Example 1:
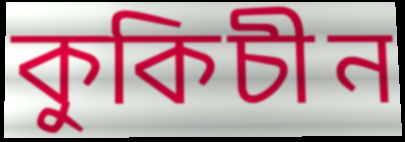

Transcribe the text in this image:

কুকিচীন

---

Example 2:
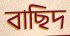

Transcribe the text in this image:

বাছিদ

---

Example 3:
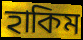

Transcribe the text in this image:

হাকিম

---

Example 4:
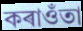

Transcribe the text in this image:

কৰাওঁতা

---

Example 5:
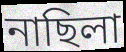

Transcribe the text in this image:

নাছিলা